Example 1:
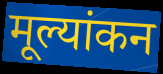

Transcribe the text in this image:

मूल्‍यांकन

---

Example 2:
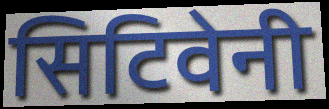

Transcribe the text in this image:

सिटिवेनी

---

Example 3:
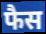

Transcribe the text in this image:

फैस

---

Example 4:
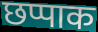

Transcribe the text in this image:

छप्पाक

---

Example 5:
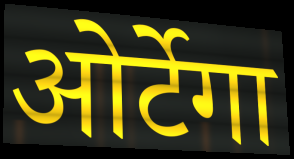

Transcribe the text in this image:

ओर्टेगा